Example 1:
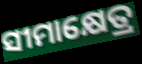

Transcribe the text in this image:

ସୀମାକ୍ଷେତ୍ର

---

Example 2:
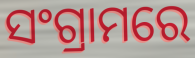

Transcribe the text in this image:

ସଂଗ୍ରାମରେ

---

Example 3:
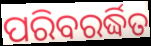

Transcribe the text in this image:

ପରିବରର୍ଦ୍ଧିତ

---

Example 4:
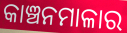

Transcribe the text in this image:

କାଞ୍ଚନମାଳାର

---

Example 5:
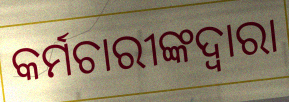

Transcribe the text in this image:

କର୍ମଚାରୀଙ୍କଦ୍ୱାରା